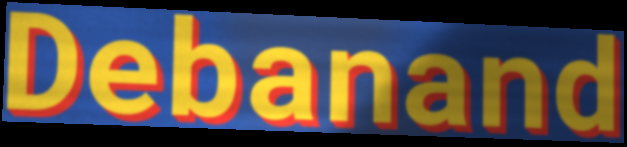
Debanand